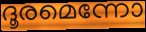
ദൂരമെന്നോ